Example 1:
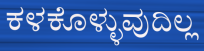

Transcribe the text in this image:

ಕಳಕೊಳ್ಳುವುದಿಲ್ಲ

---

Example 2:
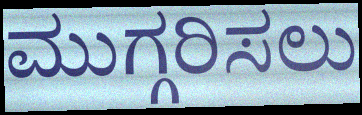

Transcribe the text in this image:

ಮುಗ್ಗರಿಸಲು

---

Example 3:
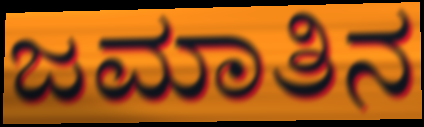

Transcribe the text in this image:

ಜಮಾತಿನ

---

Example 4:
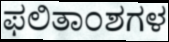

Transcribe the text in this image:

ಫಲಿತಾಂಶಗಳ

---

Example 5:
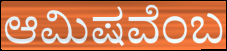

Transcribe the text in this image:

ಆಮಿಷವೆಂಬ